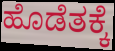
ಹೊಡೆತಕ್ಕೆ